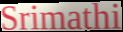
Srimathi